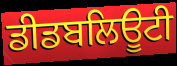
ਡੀਡਬਲਿਊਟੀ